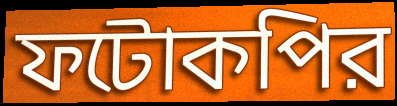
ফটোকপির